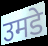
उमडे